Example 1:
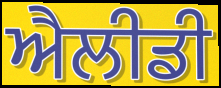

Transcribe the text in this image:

ਐਲੀਡੀ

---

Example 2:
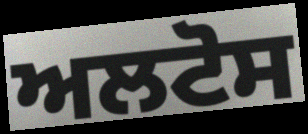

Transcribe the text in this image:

ਅਲਟੋਸ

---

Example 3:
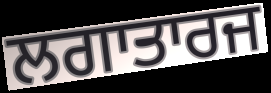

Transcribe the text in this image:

ਲਗਾਤਾਰਜ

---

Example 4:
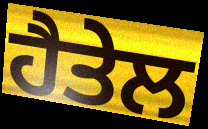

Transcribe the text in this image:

ਹੈਤੇਲ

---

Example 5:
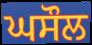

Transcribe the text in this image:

ਘਸੌਲ